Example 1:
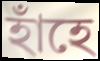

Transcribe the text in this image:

হাঁহে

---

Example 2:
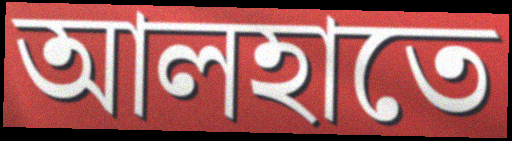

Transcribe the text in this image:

আলহাতে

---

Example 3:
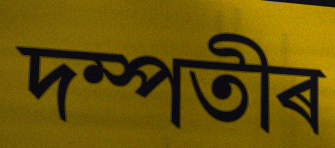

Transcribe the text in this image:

দম্পতীৰ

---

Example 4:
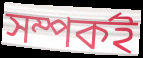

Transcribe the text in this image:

সম্পৰ্কই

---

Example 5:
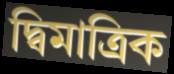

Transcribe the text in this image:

দ্বিমাত্ৰিক